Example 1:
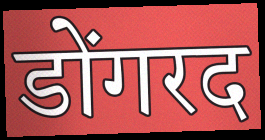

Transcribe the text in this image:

डोंगरद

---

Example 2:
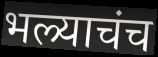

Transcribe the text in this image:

भल्याचंच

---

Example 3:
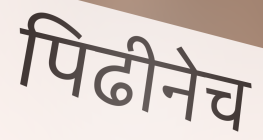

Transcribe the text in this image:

पिढीनेच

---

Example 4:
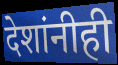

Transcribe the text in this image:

देशांनीही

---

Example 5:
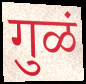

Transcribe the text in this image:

गुळं